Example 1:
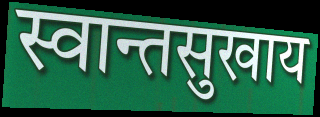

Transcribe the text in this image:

स्वान्तसुखाय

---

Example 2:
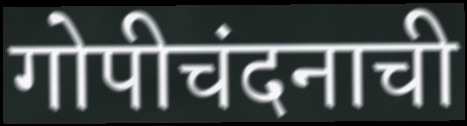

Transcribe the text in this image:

गोपीचंदनाची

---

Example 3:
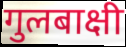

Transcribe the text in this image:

गुलबाक्षी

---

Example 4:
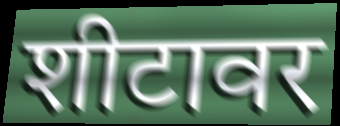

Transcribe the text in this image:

शीटावर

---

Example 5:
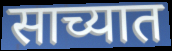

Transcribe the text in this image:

साच्यात